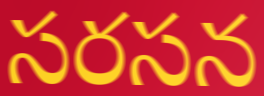
సరసన